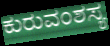
ಕುರುವಂಶಸ್ಯ